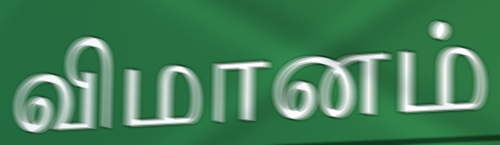
விமானம்